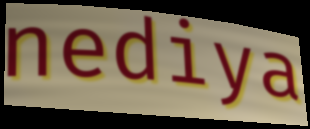
nediya